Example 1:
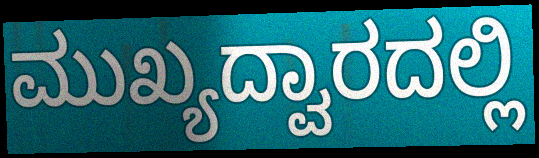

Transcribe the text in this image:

ಮುಖ್ಯದ್ವಾರದಲ್ಲಿ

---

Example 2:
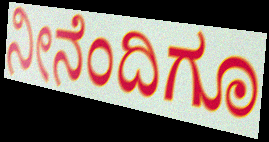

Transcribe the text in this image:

ನೀನೆಂದಿಗೂ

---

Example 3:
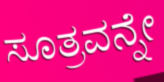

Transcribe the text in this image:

ಸೂತ್ರವನ್ನೇ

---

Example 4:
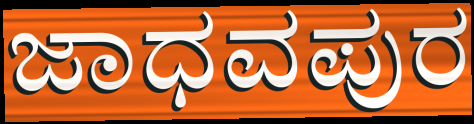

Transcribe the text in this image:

ಜಾಧವಪುರ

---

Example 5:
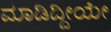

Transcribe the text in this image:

ಮಾಡಿದ್ದೀಯೇ